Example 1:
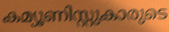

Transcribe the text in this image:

കമ്യൂണിസ്റ്റുകാരുടെ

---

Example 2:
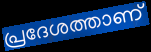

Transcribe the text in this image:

പ്രദേശത്താണ്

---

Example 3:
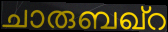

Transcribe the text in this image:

ചാരുബഖ്റ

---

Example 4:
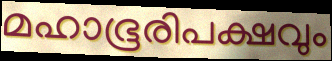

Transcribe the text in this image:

മഹാഭൂരിപക്ഷവും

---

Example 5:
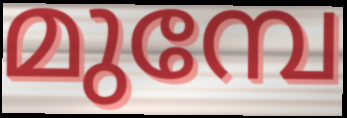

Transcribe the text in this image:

മുമ്പേ